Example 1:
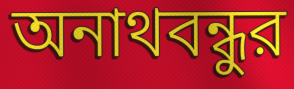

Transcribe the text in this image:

অনাথবন্ধুর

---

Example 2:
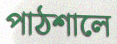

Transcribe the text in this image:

পাঠশালে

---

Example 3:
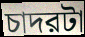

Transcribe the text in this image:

চাদরটা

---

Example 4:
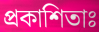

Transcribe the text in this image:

প্রকাশিতাঃ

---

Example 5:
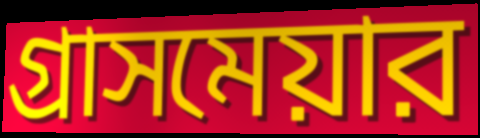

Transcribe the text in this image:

গ্রাসমেয়ার